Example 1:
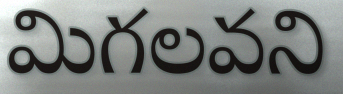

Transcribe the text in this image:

మిగలవని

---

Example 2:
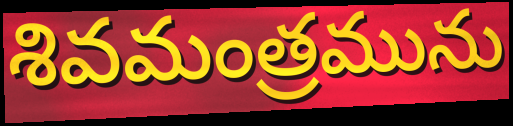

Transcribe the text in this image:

శివమంత్రమును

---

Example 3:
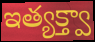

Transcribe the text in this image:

ఇత్యక్త్వా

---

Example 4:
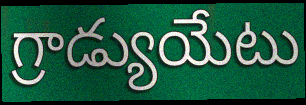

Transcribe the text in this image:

గ్రాడ్యుయేటు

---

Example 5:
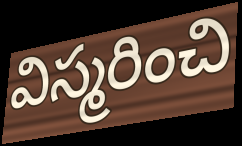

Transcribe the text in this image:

విస్మరించి